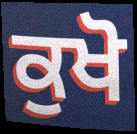
ਕੁਖੋ